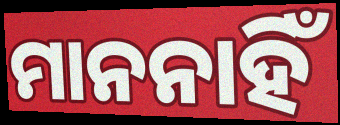
ମାନନାହିଁ